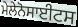
ਮੇਲੇਨੋਸਾਈਟਸ